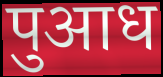
पुआध